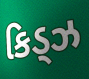
કિડ્ઝ